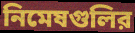
নিমেষগুলির